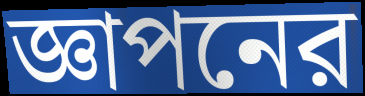
জ্ঞাপনের